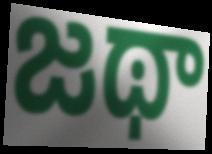
జథా